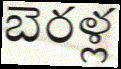
బెరళ్ల